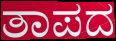
ತಾಪದ